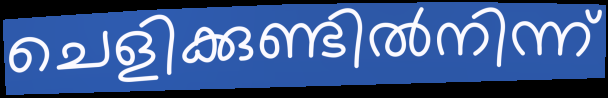
ചെളിക്കുണ്ടിൽനിന്ന്